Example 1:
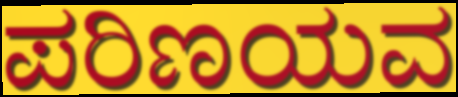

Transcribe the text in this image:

ಪರಿಣಯವ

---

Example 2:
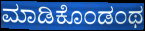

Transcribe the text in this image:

ಮಾಡಿಕೊಂಡಂಥ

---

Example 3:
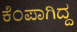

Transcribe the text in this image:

ಕೆಂಪಾಗಿದ್ದ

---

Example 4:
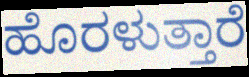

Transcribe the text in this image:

ಹೊರಳುತ್ತಾರೆ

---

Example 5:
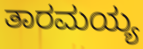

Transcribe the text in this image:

ತಾರಮಯ್ಯ